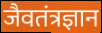
जैवतंत्रज्ञान